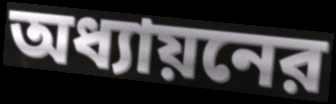
অধ্যায়নের